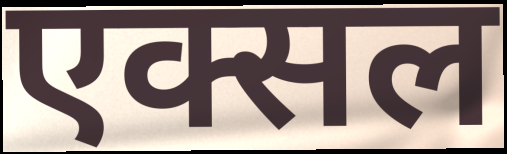
एक्सल